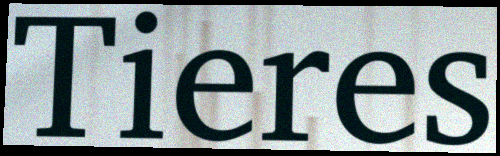
Tieres